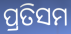
ପ୍ରତିସମ